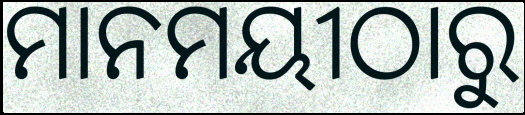
ମାନମୟୀଠାରୁ